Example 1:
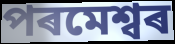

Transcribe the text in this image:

পৰমেশ্বৰ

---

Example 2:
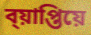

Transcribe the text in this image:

ব্য়াপ্তিয়ে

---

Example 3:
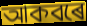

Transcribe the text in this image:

আকবৰে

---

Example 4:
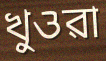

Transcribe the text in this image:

খুওৱা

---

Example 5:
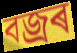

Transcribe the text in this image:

বজ্ৰৰ